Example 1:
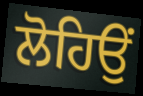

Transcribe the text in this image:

ਲੋਹਿਉਂ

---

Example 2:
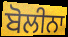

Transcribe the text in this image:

ਬੋਲੀਨਾ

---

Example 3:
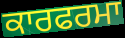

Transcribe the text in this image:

ਕਾਰਫਰਮਾ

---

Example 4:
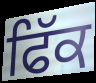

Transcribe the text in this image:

ਫਿੱਕ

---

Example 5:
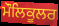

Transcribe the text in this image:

ਮੌਲਿਕੂਲਰ